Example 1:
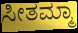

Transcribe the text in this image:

ಸೀತಮ್ಮಾ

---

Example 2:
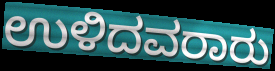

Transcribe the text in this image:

ಉಳಿದವರಾರು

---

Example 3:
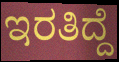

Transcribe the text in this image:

ಇರತಿದ್ದೆ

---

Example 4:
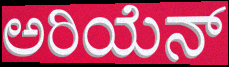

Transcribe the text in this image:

ಅರಿಯೆನ್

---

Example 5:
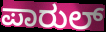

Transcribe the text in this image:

ಪಾರುಲ್